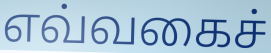
எவ்வகைச்